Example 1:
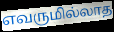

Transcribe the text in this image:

எவருமில்லாத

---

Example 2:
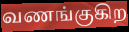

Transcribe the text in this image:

வணங்குகிற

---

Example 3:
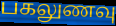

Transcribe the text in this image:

பகலுணவு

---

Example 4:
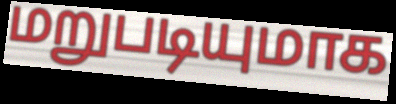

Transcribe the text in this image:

மறுபடியுமாக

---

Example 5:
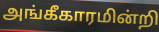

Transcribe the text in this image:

அங்கீகாரமின்றி